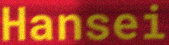
Hansei